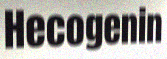
Hecogenin